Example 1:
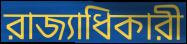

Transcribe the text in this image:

রাজ্যাধিকারী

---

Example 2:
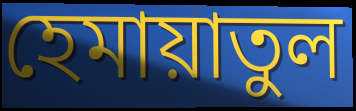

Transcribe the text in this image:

হেমায়াতুল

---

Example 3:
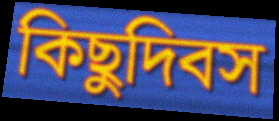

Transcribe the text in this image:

কিছুদিবস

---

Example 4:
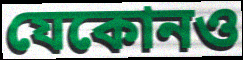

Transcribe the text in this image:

যেকোনও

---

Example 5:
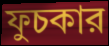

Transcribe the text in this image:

ফুচকার